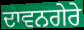
ਦਾਵਨਗੇਰੇ